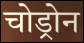
चोड्रोन